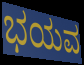
ಭಯವ